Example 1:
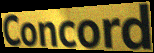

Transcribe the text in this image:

Concord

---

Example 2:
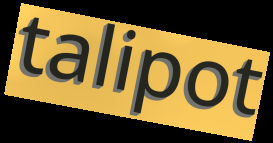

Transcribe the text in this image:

talipot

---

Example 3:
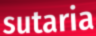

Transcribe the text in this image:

sutaria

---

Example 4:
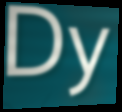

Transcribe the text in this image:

Dy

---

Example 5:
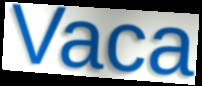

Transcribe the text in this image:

Vaca